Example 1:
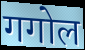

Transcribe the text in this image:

गगोल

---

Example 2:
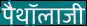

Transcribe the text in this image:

पैथॉलाजी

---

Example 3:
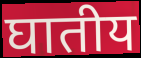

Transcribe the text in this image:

घातीय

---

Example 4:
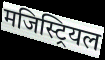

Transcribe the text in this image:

मजिस्ट्रियल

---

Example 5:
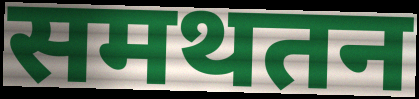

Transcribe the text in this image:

समथतन